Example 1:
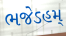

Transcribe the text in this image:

ભજેઽહમ્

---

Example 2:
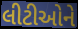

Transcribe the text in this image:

લીટીઓને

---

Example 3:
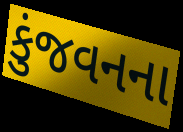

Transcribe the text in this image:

કુંજવનના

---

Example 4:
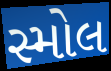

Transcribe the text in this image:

સ્મોલ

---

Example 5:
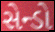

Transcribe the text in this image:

સેન્ડો